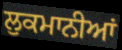
ਲੁਕਮਾਨੀਆਂ